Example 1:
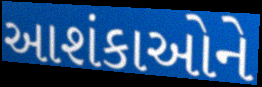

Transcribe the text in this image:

આશંકાઓને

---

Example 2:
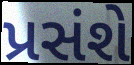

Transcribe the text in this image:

પ્રસંશે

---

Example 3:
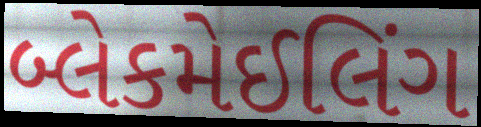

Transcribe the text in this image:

બ્લેકમેઈલિંગ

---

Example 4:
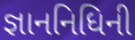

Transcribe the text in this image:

જ્ઞાનનિધિની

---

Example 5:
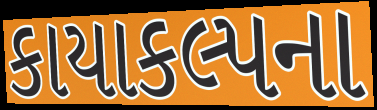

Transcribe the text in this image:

કાયાકલ્પના